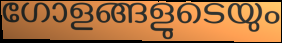
ഗോളങ്ങളുടെയും